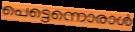
പെട്ടെന്നൊരാൾ